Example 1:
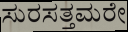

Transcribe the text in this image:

ಸುರಸತ್ತಮರೇ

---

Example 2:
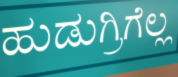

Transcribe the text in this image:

ಹುಡುಗ್ರಿಗೆಲ್ಲ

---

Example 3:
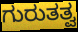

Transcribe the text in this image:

ಗುರುತತ್ವ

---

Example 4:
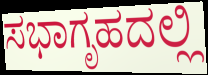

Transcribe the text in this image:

ಸಭಾಗೃಹದಲ್ಲಿ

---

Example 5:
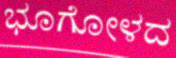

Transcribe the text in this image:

ಭೂಗೋಳದ